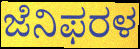
ಜೆನಿಫರಳ